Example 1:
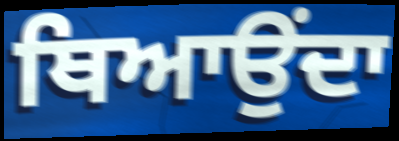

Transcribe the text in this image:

ਥਿਆਉਂਦਾ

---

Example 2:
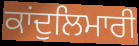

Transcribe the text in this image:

ਕਾਂਦੁਲਿਮਾਰੀ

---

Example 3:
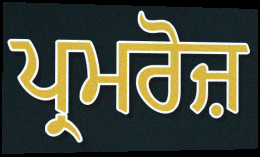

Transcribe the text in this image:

ਪ੍ਰਮਰੋਜ਼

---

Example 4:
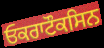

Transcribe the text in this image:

ਓਕਰਾਟੌਕਸਿਨ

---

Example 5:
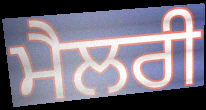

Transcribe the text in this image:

ਮੈਲਰੀ